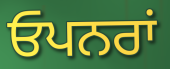
ਓਪਨਰਾਂ